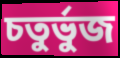
চতুৰ্ভুজ